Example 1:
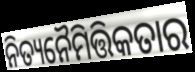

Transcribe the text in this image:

ନିତ୍ୟନୈମିତ୍ତିକତାର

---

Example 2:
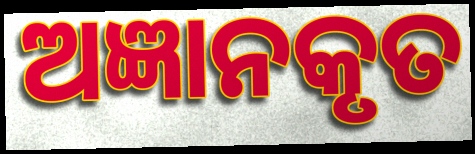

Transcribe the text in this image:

ଅଜ୍ଞାନକୃତ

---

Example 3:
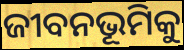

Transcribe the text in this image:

ଜୀବନଭୂମିକୁ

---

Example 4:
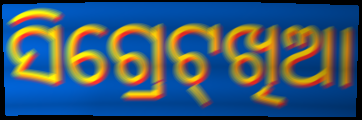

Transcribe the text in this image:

ସିଗ୍ରେଟ୍‌ଖିଆ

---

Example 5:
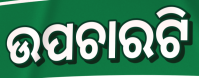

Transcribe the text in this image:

ଉପଚାରଟି